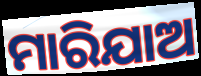
ମାରିଯାଅ